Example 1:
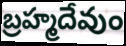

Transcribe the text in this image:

బ్రహ్మదేవుం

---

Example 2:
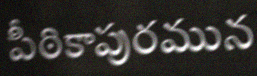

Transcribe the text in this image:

పీఠికాపురమున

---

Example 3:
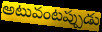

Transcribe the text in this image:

అటువంటప్పుడు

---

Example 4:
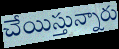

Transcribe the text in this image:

చేయిస్తున్నారు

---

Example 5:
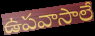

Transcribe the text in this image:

ఉపవాసాలే